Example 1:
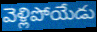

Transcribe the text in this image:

వెళ్లిపోయేడు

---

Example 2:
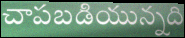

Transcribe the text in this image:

చాపబడియున్నది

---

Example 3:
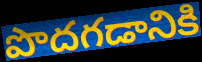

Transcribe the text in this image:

పొదగడానికి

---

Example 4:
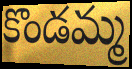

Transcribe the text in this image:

కొండమ్మ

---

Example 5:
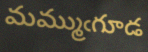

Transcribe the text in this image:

మమ్ముఁగూడ